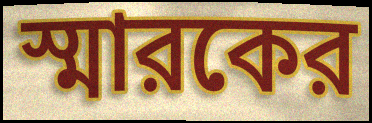
স্মারকের